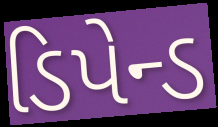
ડિપેન્ડ